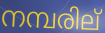
നമ്പരില്